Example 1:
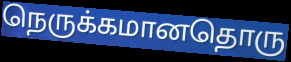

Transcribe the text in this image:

நெருக்கமானதொரு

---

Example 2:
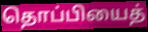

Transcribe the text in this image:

தொப்பியைத்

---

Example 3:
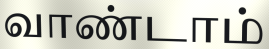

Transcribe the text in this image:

வாண்டாம்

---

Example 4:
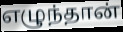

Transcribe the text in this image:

எழுந்தான்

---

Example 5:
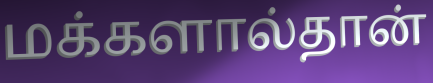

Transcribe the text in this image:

மக்களால்தான்